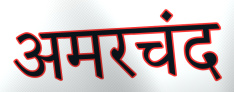
अमरचंद